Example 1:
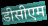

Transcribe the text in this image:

डीसीएम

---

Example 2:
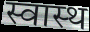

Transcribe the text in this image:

स्वास्थ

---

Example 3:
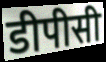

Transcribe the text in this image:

डीपीसी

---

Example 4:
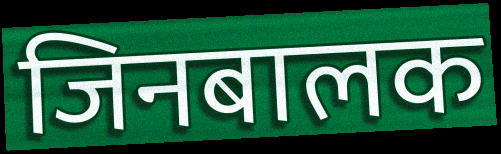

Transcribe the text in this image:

जिनबालक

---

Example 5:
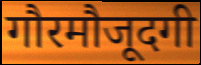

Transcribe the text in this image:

गौरमौजूदगी